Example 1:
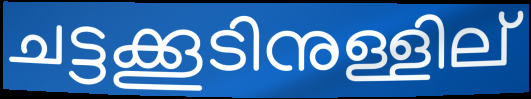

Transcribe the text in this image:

ചട്ടക്കൂടിനുള്ളില്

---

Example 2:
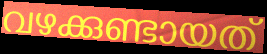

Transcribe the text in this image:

വഴക്കുണ്ടായത്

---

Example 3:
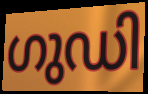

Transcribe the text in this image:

ഗുഡി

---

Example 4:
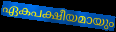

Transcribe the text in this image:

ഏകപക്ഷീയമായും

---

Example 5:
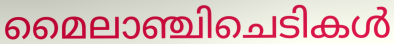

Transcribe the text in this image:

മൈലാഞ്ചിചെടികൾ